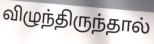
விழுந்திருந்தால்